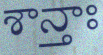
శాన్తాః